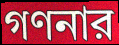
গণনার